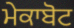
ਮੇਕਾਬੋਟ